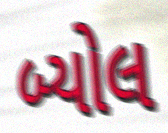
બ્યોલ